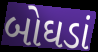
બોઘડાં